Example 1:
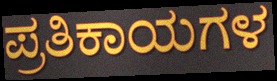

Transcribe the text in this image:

ಪ್ರತಿಕಾಯಗಳ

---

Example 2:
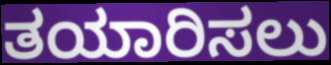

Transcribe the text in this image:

ತಯಾರಿಸಲು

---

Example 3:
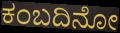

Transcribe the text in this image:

ಕಂಬದಿನೋ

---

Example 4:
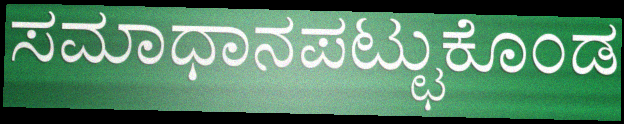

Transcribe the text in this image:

ಸಮಾಧಾನಪಟ್ಟುಕೊಂಡ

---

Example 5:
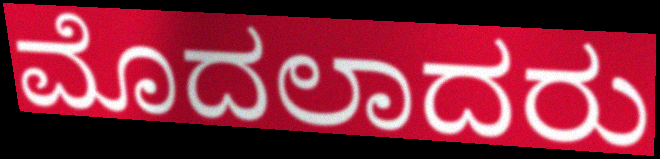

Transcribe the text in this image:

ಮೊದಲಾದರು